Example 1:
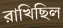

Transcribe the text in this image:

রাখিছিল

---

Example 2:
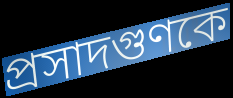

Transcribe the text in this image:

প্রসাদগুণকে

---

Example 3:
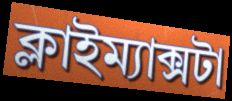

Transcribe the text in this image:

ক্লাইম্যাক্সটা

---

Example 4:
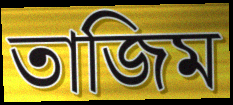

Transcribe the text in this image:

তাজিম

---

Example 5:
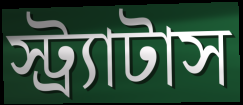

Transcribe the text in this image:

স্ট্র্যাটাস